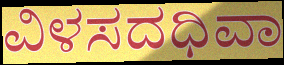
ವಿಳಸದಧಿವಾ